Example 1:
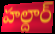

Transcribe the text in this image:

హల్దార్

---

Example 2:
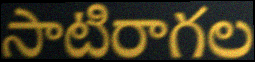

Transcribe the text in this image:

సాటిరాగల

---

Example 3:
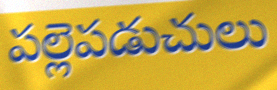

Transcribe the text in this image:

పల్లెపడుచులు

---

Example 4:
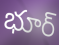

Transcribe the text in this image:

భూర్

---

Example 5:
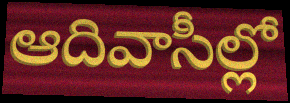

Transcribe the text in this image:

ఆదివాసీల్లో